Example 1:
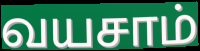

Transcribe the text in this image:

வயசாம்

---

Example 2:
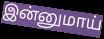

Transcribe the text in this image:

இன்னுமாய்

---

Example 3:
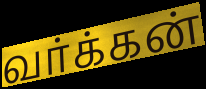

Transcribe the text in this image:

வர்க்கன்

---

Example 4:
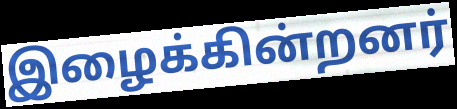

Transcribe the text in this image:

இழைக்கின்றனர்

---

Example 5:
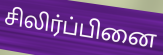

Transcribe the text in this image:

சிலிர்ப்பினை